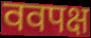
ववपक्ष